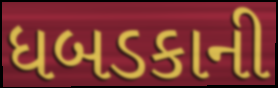
ધબડકાની